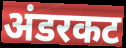
अंडरकट